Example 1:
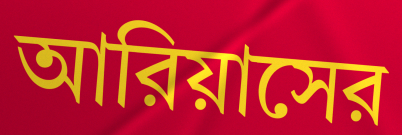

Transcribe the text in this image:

আরিয়াসের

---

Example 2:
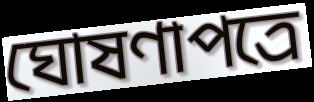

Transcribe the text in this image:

ঘোষণাপত্রে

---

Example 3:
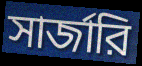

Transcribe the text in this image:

সার্জারি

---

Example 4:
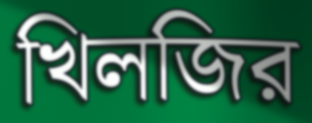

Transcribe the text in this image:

খিলজির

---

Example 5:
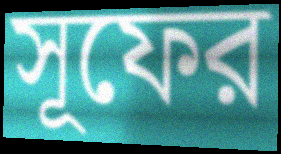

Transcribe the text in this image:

সূফের